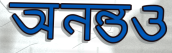
অনন্তও